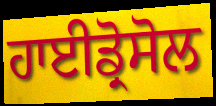
ਹਾਈਡ੍ਰੋਸੋਲ